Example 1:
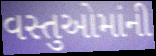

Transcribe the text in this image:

વસ્તુઓમાંની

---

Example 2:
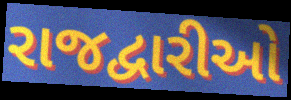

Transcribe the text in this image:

રાજદ્વારીઓ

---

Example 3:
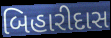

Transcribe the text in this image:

બિહારીદાસ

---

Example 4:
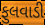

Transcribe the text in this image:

ફુલવાડી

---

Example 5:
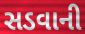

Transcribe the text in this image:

સડવાની